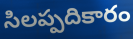
సిలప్పదికారం